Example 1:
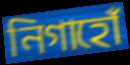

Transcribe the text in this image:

নিগাহোঁ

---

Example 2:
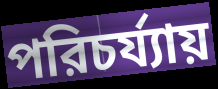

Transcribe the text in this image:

পরিচর্য্যায়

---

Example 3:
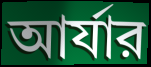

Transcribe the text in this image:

আর্যার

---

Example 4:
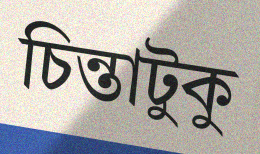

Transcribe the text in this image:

চিন্তাটুকু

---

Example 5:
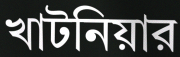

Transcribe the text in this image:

খাটনিয়ার